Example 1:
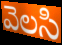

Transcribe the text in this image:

వెలసి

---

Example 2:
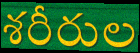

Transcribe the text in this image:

శరీరుల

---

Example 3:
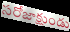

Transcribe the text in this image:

సరోజాక్షుండు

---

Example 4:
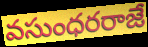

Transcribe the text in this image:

వసుంధరరాజే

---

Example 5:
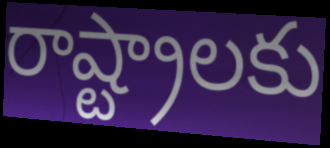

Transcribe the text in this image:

రాష్ట్రాలకు